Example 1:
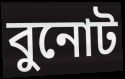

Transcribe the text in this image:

বুনোট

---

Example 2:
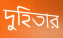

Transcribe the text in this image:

দুহিতার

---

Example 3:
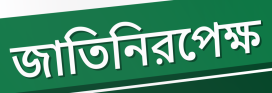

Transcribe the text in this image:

জাতিনিরপেক্ষ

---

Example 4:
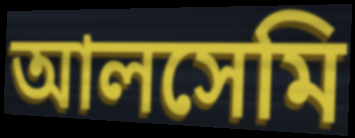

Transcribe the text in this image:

আলসেমি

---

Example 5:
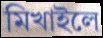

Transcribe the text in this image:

মিখাইলে